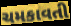
ચમકાવતી